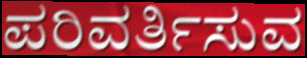
ಪರಿವರ್ತಿಸುವ